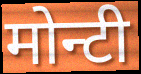
मोन्टी